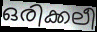
ഒരിക്കലീ